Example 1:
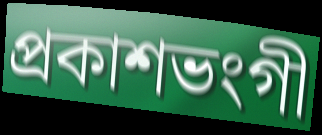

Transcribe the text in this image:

প্ৰকাশভংগী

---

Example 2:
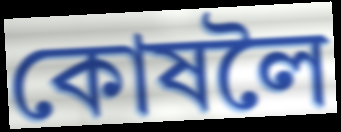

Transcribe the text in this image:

কোষলৈ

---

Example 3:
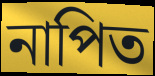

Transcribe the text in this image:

নাপিত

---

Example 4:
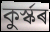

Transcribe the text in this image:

কুৰ্স্কৰ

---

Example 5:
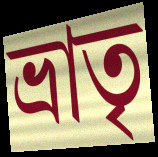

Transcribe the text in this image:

ভ্ৰাতৃ